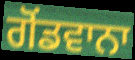
ਗੋਂਡਵਾਨਾ